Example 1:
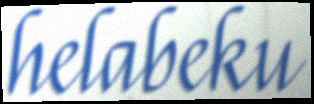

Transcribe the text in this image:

helabeku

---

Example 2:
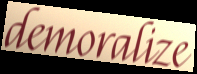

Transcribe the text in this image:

demoralize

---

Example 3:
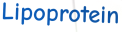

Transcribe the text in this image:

Lipoprotein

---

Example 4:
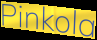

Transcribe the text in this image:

Pinkola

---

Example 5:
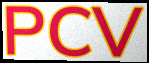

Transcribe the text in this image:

PCV